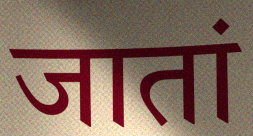
जातां